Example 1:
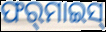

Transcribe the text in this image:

ଫର୍‌ମାଇସ୍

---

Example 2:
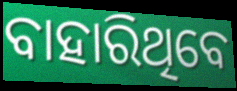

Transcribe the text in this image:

ବାହାରିଥିବେ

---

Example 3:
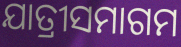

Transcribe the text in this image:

ଯାତ୍ରୀସମାଗମ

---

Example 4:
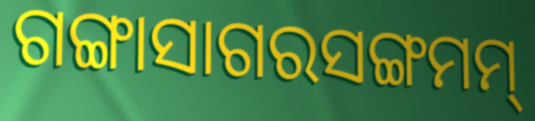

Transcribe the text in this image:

ଗଙ୍ଗାସାଗରସଙ୍ଗମମ୍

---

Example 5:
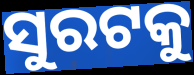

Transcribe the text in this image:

ସୁରଟକୁ